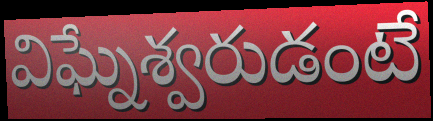
విఘ్నేశ్వరుడంటే